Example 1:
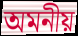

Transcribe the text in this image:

অমনীয়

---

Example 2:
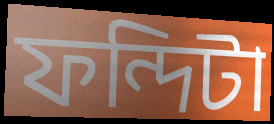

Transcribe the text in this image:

ফন্দিটা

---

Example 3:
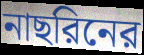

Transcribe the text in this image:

নাছরিনের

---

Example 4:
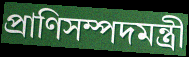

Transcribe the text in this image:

প্রাণিসম্পদমন্ত্রী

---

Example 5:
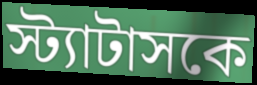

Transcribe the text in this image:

স্ট্যাটাসকে